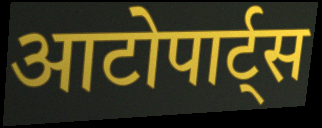
आटोपार्ट्स